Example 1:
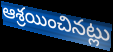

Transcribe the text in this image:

ఆశ్రయించినట్లు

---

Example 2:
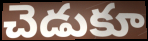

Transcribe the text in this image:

చెడుకూ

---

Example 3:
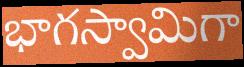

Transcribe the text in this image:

భాగస్వామిగా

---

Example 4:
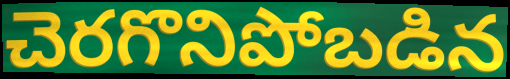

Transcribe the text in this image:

చెరగొనిపోబడిన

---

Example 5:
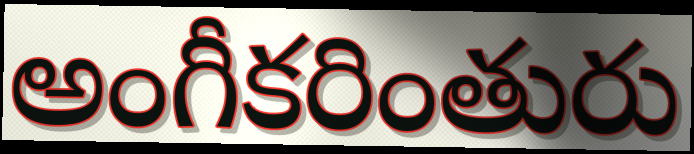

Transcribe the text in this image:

అంగీకరింతురు